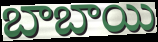
బాబాయి